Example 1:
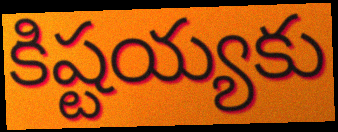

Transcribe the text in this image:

కిష్టయ్యకు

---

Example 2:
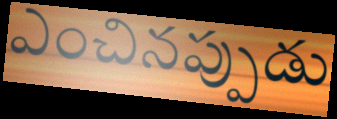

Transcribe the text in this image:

ఎంచినప్పుడు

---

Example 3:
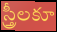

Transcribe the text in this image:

స్త్రీలకూ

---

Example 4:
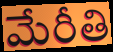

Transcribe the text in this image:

మేరీతి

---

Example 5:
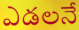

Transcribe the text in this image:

ఎడలనే